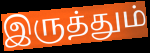
இருத்தும்